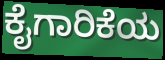
ಕೈಗಾರಿಕೆಯ